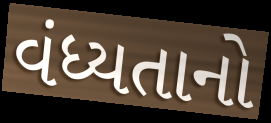
વંધ્યતાનો